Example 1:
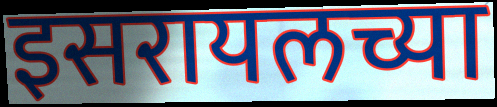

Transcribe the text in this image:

इसरायलच्या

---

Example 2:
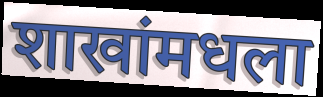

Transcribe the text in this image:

शाखांमधला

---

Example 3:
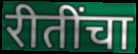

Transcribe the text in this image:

रीतींचा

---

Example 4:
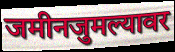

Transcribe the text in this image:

जमीनजुमल्यावर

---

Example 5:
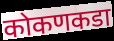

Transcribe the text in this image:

कोकणकडा